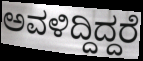
ಅವಳಿದ್ದಿದ್ದರೆ